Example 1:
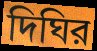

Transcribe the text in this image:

দিঘির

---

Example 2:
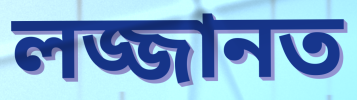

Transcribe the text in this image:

লজ্জানত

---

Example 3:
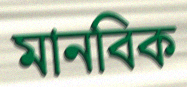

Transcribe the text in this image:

মানবিক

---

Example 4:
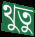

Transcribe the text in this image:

থুতু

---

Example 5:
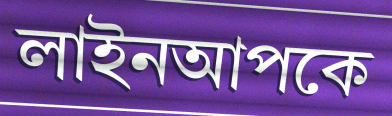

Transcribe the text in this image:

লাইনআপকে